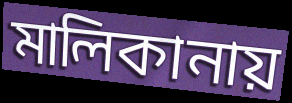
মালিকানায়